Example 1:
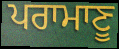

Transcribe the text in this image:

ਪਰਾਮਾਣੂ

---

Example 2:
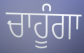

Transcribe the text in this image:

ਚਾਹੂੰਗਾ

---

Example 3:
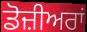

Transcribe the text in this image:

ਡੋਜ਼ੀਅਰਾਂ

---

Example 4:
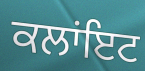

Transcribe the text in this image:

ਕਲਾਂਇਟ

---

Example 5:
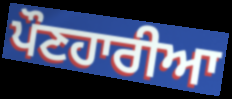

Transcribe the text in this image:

ਪੌਣਹਾਰੀਆ